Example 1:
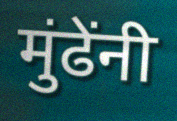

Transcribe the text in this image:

मुंढेंनी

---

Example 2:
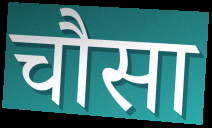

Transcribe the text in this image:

चौसा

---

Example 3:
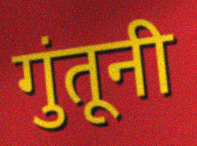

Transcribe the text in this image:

गुंतूनी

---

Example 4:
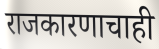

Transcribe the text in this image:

राजकारणाचाही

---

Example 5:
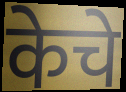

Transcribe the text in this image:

केचे